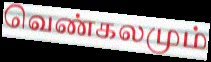
வெண்கலமும்